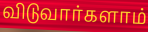
விடுவார்களாம்